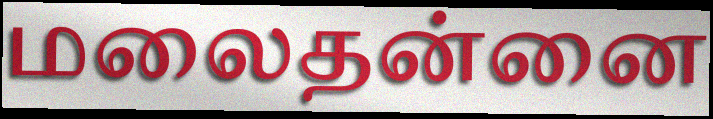
மலைதன்னை